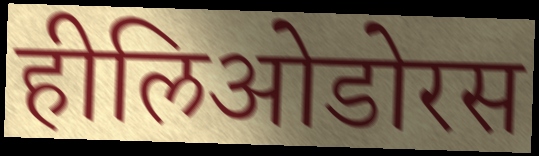
हीलिओडोरस